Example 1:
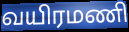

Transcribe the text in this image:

வயிரமணி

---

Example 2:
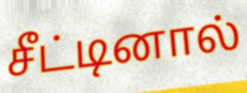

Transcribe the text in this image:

சீட்டினால்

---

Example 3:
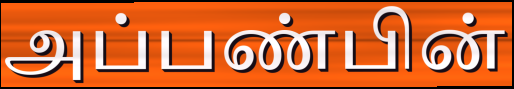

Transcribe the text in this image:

அப்பண்பின்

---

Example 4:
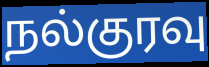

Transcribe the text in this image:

நல்குரவு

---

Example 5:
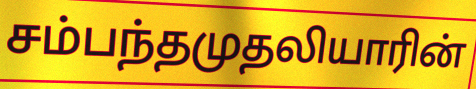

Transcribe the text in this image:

சம்பந்தமுதலியாரின்